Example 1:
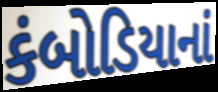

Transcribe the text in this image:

કંબોડિયાનાં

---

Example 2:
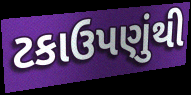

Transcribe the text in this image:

ટકાઉપણુંથી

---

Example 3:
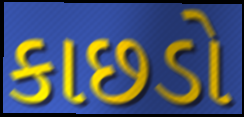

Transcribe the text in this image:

કાછડો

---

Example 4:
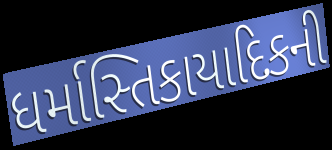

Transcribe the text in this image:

ધર્માસ્તિકાયાદિકની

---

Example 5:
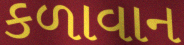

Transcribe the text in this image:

કળાવાન